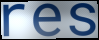
res